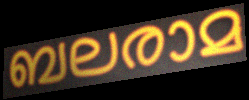
ബലരാമ